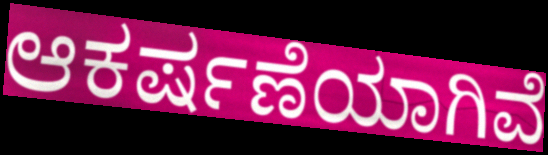
ಆಕರ್ಷಣೆಯಾಗಿವೆ